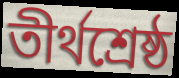
তীর্থশ্রেষ্ঠ